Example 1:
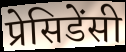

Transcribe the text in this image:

प्रेसिडेंसी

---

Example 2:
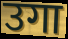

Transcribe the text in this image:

उगा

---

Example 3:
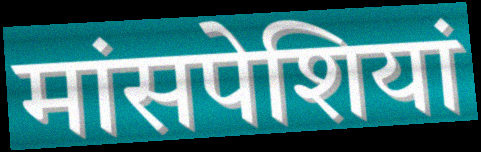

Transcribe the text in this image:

मांसपेशियां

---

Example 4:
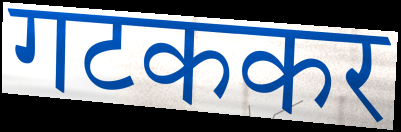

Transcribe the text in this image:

गटककर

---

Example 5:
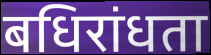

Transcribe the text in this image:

बधिरांधता